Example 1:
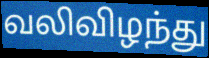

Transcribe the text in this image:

வலிவிழந்து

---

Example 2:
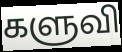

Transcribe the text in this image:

களுவி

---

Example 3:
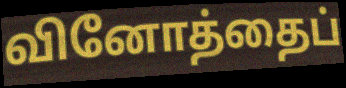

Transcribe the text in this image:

வினோத்தைப்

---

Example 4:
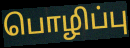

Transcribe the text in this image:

பொழிப்பு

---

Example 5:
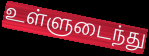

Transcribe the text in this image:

உள்ளுடைந்து